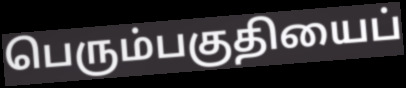
பெரும்பகுதியைப்